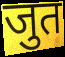
जुत